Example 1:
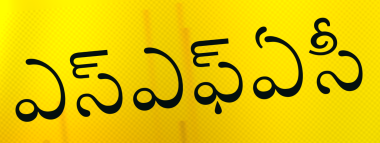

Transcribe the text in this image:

ఎస్ఎఫ్ఏసీ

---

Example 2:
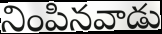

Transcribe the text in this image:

నింపినవాడు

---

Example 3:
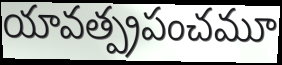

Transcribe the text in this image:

యావత్ప్రపంచమూ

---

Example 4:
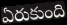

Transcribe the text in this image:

ఏరుకుంది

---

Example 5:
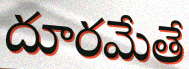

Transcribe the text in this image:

దూరమేతే